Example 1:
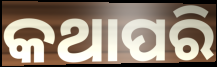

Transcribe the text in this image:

କଥାପରି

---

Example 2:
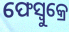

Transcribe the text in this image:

ଫେସ୍ବୁକ୍ରେ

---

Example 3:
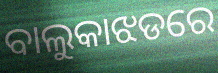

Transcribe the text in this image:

ବାଲୁକାଝଡରେ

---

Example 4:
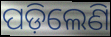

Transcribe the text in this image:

ପଡ଼ିଲେଣି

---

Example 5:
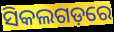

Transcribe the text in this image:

ସିକଲଗଡ଼ରେ